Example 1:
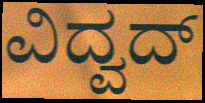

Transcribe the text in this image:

ವಿದ್ವದ್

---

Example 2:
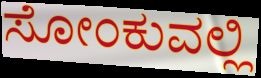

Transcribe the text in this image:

ಸೋಂಕುವಲ್ಲಿ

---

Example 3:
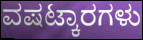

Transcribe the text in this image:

ವಷಟ್ಕಾರಗಳು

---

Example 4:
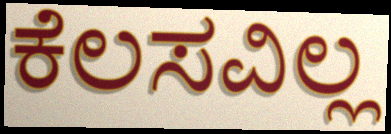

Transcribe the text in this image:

ಕೆಲಸವಿಲ್ಲ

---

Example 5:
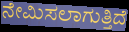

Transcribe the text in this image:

ನೇಮಿಸಲಾಗುತ್ತಿದೆ